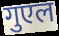
गुएल